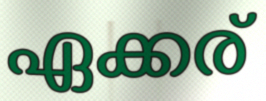
ഏക്കര്